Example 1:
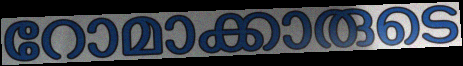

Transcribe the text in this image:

റോമാക്കാരുടെ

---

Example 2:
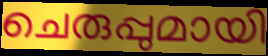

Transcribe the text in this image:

ചെരുപ്പുമായി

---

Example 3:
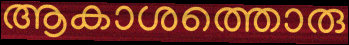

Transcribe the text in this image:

ആകാശത്തൊരു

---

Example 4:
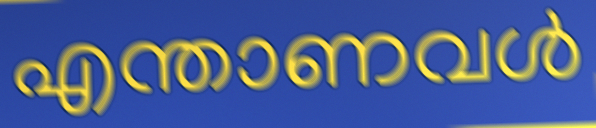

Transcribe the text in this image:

എന്താണവൾ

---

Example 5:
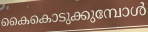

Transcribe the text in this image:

കൈകൊടുക്കുമ്പോൾ